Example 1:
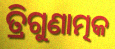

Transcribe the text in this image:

ତ୍ରିଗୁଣାତ୍ମକ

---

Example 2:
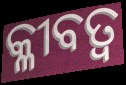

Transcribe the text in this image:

କ୍ଳୀବତ୍ବ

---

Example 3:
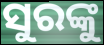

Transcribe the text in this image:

ସୁରଙ୍କୁ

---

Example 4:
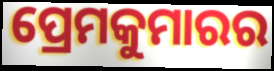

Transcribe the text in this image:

ପ୍ରେମକୁମାରର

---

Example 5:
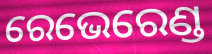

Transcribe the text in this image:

ରେଭେରେଣ୍ଡ